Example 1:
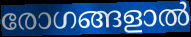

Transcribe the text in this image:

രോഗങ്ങളാൽ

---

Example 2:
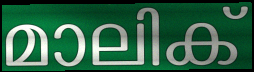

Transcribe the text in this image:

മാലിക്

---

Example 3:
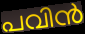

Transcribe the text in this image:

പവിൻ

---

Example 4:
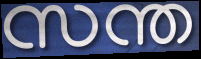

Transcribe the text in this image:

സന്ത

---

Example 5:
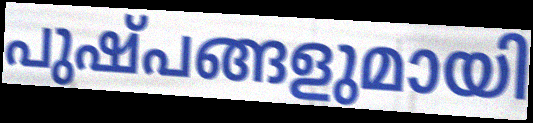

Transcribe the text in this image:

പുഷ്പങ്ങളുമായി